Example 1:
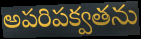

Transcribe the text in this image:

అపరిపక్వతను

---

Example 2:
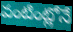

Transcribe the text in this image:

వంటింట్లోనే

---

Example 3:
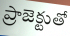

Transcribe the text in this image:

ప్రాజెక్టుతో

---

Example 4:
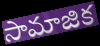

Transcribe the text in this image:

సామాజిక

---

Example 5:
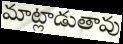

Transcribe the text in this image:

మాట్లాడుతావు